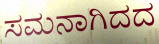
ಸಮನಾಗಿದದ